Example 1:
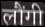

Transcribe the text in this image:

लौंगी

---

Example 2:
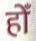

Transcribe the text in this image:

होँ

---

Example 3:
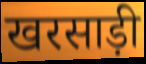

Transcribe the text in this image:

खरसाड़ी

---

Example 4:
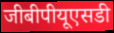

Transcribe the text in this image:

जीबीपीयूएसडी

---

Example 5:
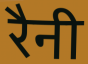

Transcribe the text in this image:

रैनी